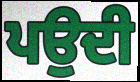
ਪਉਦੀ